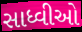
સાધ્વીઓ